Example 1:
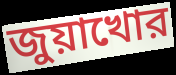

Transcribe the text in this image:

জুয়াখোর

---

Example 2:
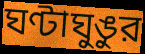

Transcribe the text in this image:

ঘণ্টাঘুঙুর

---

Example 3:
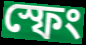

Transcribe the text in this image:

স্ফেং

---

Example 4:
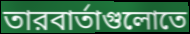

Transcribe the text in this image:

তারবার্তাগুলোতে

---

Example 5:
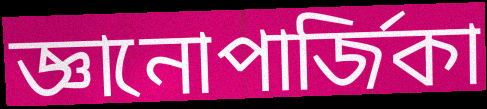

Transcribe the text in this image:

জ্ঞানোপার্জিকা